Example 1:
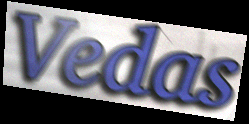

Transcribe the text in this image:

Vedas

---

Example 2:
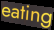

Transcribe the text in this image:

eating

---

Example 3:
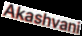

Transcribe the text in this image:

Akashvani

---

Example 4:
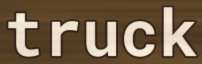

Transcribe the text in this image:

truck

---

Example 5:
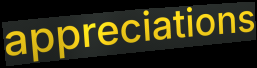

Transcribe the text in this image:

appreciations